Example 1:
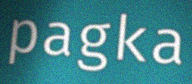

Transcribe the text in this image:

pagka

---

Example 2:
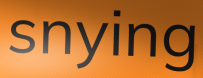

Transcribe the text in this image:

snying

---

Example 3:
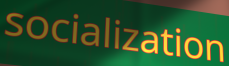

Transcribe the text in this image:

socialization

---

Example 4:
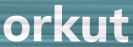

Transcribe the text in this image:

orkut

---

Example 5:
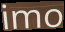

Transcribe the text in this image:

imo